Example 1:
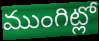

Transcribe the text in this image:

ముంగిట్లో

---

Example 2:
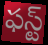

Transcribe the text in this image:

ఫస్ట్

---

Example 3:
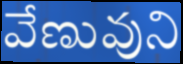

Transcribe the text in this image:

వేణువుని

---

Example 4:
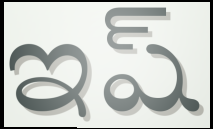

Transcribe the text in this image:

ఇష్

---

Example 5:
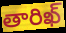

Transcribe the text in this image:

తారిఖ్